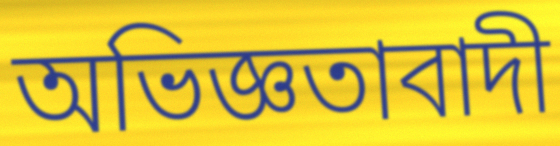
অভিজ্ঞতাবাদী